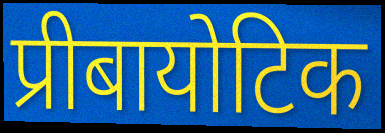
प्रीबायोटिक